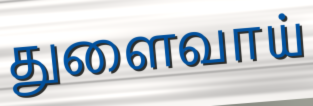
துளைவாய்